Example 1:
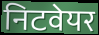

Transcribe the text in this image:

निटवेयर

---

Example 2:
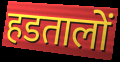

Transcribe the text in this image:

हडतालों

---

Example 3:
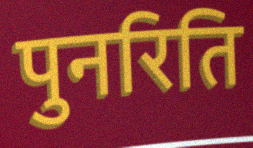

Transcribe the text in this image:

पुनरिति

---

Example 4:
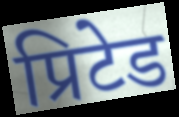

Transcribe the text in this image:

प्रिटेड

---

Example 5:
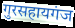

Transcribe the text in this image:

गुरसहायगंज